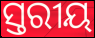
ସ୍ତରୀୟ